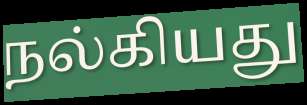
நல்கியது